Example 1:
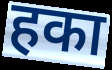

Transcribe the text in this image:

हका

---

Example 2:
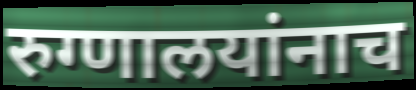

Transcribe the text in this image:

रुग्णालयांनाच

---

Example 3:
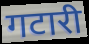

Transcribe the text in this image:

गटारी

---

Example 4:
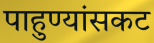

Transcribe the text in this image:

पाहुण्यांसकट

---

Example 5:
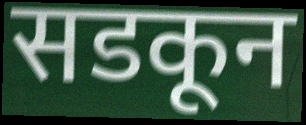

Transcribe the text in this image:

सडकून